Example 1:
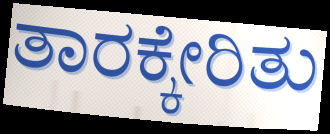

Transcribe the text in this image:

ತಾರಕ್ಕೇರಿತು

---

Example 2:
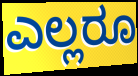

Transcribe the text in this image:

ಎಲ್ಲರೂ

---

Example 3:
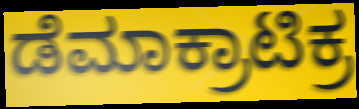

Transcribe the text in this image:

ಡೆಮಾಕ್ರಾಟಿಕ್ರ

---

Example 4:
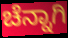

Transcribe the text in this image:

ಚೆನ್ನಾಗಿ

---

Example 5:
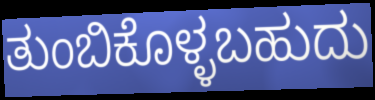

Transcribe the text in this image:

ತುಂಬಿಕೊಳ್ಳಬಹುದು